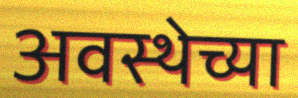
अवस्थेच्या